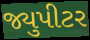
જ્યુપીટર